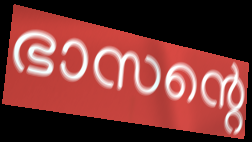
ഭാസന്റെ